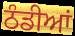
ਠੰਡੀਆਂ